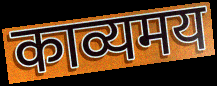
काव्यमय